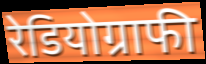
रेडियोग्राफी